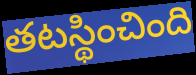
తటస్థించింది